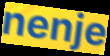
nenje